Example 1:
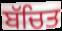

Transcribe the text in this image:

ਬੱਚਿਤ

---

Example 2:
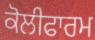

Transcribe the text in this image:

ਕੋਲੀਫਾਰਮ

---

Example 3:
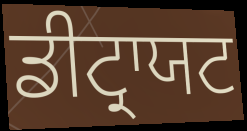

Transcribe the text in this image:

ਡੀਟ੍ਰਾਯਟ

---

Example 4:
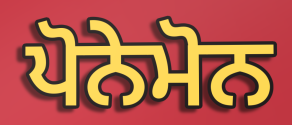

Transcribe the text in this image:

ਪੋਨੇਮੋਨ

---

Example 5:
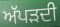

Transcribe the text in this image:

ਅੱਪੜਦੀ